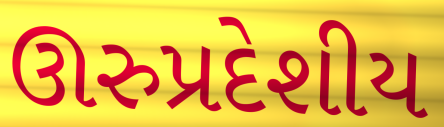
ઊરુપ્રદેશીય